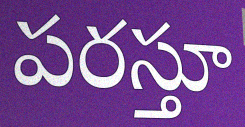
పరస్తూ